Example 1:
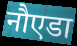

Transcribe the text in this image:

नौएडा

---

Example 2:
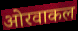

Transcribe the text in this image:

ओरवाकल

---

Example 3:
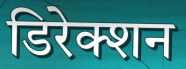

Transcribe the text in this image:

डिरेक्शन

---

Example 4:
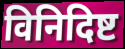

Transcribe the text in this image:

विनिदिष्ट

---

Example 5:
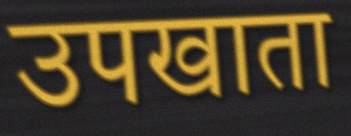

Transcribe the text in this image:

उपखाता